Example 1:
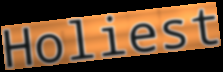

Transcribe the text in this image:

Holiest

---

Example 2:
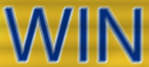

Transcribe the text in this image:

WIN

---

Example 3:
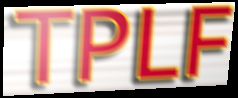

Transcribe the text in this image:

TPLF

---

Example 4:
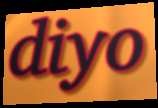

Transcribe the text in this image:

diyo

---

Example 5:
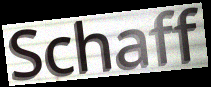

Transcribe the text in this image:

Schaff